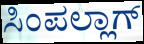
ಸಿಂಪಲ್ಲಾಗ್